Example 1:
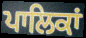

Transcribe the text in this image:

ਪਾਲਿਕਾਂ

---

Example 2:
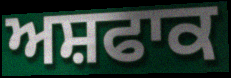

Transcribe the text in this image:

ਅਸ਼ਫਾਕ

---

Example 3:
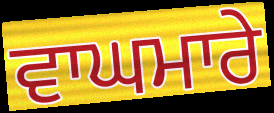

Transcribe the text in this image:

ਵਾਘਮਾਰੇ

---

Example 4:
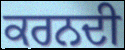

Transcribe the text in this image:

ਕਰਨਦੀ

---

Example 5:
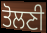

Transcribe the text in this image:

ਤੋਲਣੀ